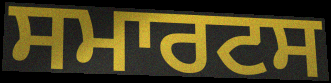
ਸਮਾਰਟਸ